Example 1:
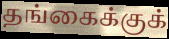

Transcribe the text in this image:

தங்கைக்குக்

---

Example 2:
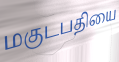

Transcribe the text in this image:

மகுடபதியை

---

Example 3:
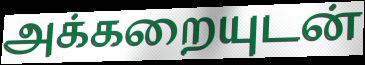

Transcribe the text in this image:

அக்கறையுடன்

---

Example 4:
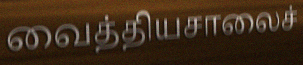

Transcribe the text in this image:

வைத்தியசாலைச்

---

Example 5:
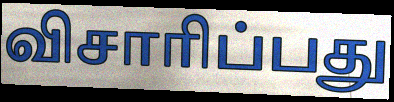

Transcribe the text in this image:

விசாரிப்பது